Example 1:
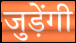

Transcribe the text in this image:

जुड़ेंगी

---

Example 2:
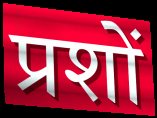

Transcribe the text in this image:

प्रशों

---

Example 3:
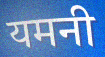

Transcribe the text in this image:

यमनी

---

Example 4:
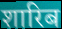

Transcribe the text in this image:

शारिब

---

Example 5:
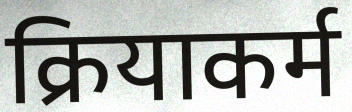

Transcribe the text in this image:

क्रियाकर्म